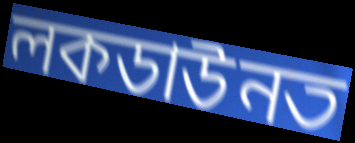
লকডাউনত